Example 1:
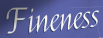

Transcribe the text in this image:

Fineness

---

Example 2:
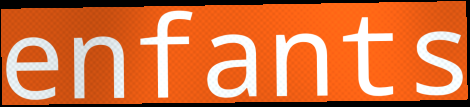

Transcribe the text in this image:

enfants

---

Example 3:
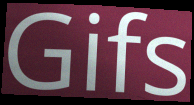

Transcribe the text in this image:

Gifs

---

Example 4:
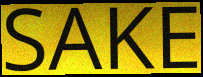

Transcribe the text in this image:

SAKE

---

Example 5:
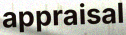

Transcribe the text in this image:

appraisal